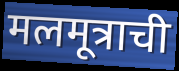
मलमूत्राची